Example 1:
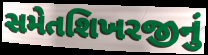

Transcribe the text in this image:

સમેતશિખરજીનું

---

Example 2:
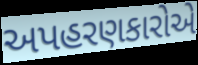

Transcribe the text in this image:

અપહરણકારોએ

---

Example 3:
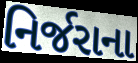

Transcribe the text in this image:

નિર્જરાના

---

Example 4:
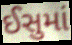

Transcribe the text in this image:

ઈસુમાં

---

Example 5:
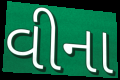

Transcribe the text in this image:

વીના